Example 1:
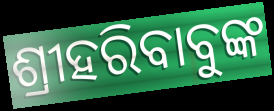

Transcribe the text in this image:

ଶ୍ରୀହରିବାବୁଙ୍କ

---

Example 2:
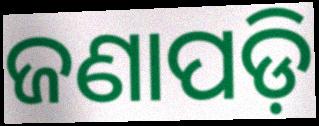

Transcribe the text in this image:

ଜଣାପଡ଼ି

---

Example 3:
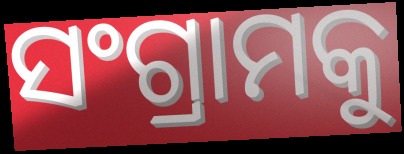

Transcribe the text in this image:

ସଂଗ୍ରାମକୁ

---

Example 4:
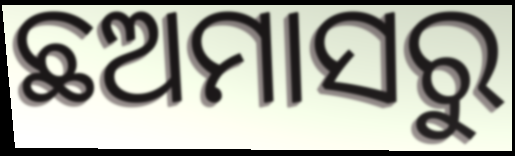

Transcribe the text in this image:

ଛଅମାସରୁ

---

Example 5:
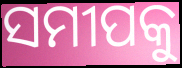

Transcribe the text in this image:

ସମୀପକୁ